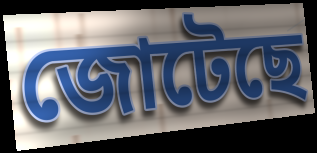
জোটেছে